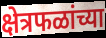
क्षेत्रफळांच्या